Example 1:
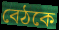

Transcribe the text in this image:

বেঠকে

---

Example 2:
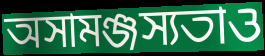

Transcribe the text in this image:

অসামঞ্জস্যতাও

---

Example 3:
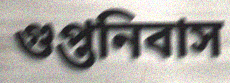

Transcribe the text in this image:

গুপ্তনিবাস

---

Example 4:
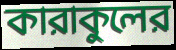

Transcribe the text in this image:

কারাকুলের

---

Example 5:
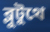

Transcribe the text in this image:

ব্লুটুথে